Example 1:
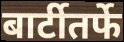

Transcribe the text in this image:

बार्टीतर्फे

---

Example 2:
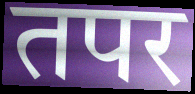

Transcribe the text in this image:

तपर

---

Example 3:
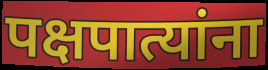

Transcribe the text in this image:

पक्षपात्यांना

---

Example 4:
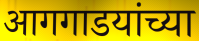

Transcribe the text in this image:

आगगाडयांच्या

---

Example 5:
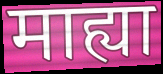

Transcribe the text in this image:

माह्या